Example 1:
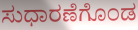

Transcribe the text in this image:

ಸುಧಾರಣೆಗೊಂಡ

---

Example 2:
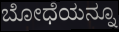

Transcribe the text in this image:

ಬೋಧೆಯನ್ನೂ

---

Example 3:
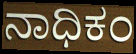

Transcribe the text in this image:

ನಾಧಿಕಂ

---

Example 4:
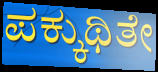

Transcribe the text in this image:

ಪಕ್ಕುಥಿತೇ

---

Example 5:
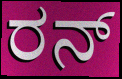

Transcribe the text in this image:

ರನ್